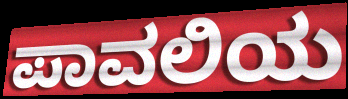
ಪಾವಲಿಯ